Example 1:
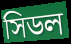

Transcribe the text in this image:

সিডল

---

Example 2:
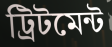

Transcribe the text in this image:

ট্রিটমেন্ট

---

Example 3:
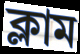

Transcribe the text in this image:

ক্লাম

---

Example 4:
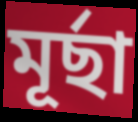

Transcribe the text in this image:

মূর্ছা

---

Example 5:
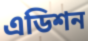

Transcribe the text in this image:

এডিশন